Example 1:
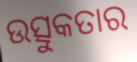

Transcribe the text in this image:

ଉତ୍ସୁକତାର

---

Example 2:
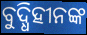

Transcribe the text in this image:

ବୁଦ୍ଧିହୀନଙ୍କ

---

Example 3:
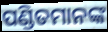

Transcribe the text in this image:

ପଣ୍ଡିତମାନଙ୍କ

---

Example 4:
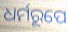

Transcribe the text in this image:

ଧର୍ମରୂପେ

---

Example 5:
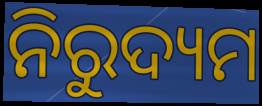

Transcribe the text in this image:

ନିରୁଦ୍ୟମ